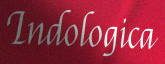
Indologica